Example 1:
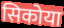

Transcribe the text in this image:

सिकोया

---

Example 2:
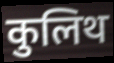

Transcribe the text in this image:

कुलिथ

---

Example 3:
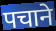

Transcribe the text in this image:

पचाने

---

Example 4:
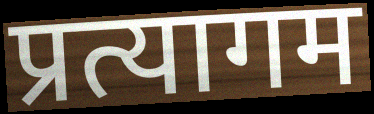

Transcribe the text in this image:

प्रत्यागम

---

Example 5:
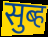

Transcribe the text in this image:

सुब्ह